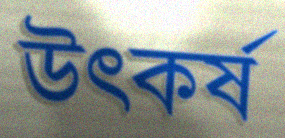
উৎকৰ্ষ